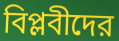
বিপ্লবীদের